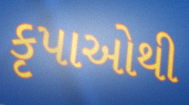
કૃપાઓથી